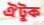
ঐটুক